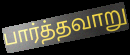
பார்த்தவாறு